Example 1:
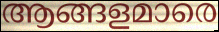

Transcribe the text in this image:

ആങ്ങളമാരെ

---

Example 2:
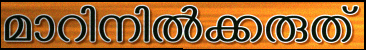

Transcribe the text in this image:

മാറിനിൽക്കരുത്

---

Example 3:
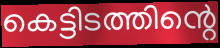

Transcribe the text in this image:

കെട്ടിടത്തിന്റെ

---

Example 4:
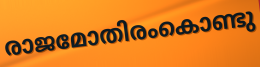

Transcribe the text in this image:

രാജമോതിരംകൊണ്ടു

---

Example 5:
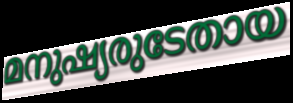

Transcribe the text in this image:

മനുഷ്യരുടേതായ